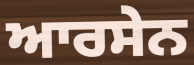
ਆਰਸੇਨ